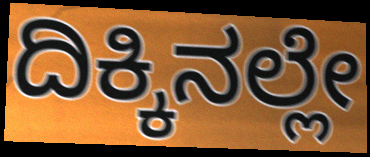
ದಿಕ್ಕಿನಲ್ಲೇ